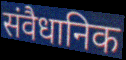
संवैधानिक